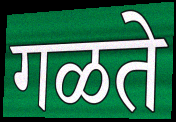
गळते